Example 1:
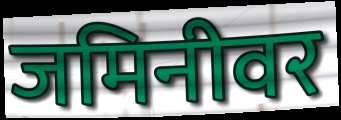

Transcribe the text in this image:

जमिनीवर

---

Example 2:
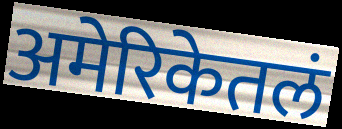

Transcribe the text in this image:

अमेरिकेतलं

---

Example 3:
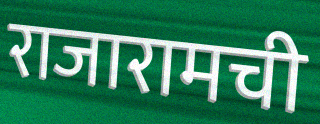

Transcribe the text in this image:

राजारामची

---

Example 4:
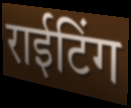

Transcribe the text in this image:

राईटिंग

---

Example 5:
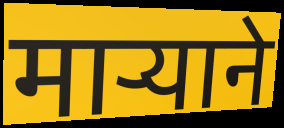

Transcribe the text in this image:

मार्‍याने